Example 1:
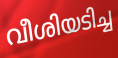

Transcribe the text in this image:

വീശിയടിച്ച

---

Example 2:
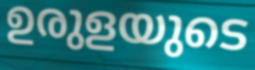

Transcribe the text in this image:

ഉരുളയുടെ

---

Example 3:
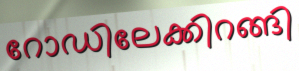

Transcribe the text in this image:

റോഡിലേക്കിറങ്ങി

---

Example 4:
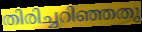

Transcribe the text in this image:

തിരിച്ചറിഞ്ഞതു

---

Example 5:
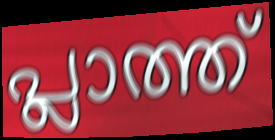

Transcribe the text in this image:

പ്ലാത്ത്